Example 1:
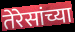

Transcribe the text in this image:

तेरेसांच्या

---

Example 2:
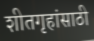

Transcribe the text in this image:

शीतगृहांसाठी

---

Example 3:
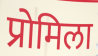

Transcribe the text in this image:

प्रोमिला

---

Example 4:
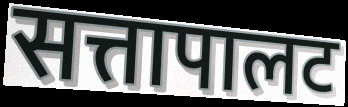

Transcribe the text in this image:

सत्तापालट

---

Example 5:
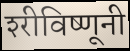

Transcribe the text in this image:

श्रीविष्णूनी